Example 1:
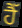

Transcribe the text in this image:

ਹੈੱ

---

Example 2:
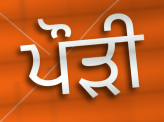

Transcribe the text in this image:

ਪੌੜੀ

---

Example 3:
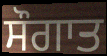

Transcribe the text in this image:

ਸੌਗਾਤ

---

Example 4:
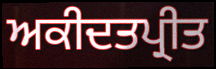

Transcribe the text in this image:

ਅਕੀਦਤਪ੍ਰੀਤ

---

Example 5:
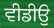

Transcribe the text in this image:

ਵੀਡੀਉ